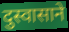
दुस्वासाने